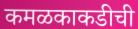
कमळकाकडीची